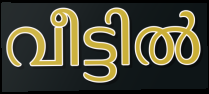
വീട്ടിൽ